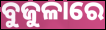
ବୁଜୁଳାରେ